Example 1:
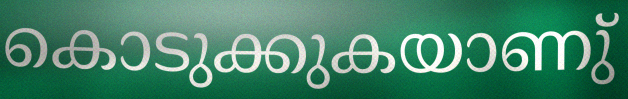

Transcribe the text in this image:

കൊടുക്കുകയാണു്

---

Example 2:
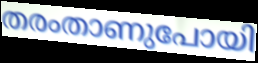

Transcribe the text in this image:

തരംതാണുപോയി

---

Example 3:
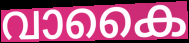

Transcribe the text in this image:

വാകൈ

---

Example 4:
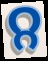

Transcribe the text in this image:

റ്റ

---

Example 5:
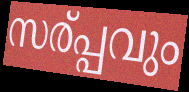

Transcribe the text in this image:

സര്പ്പവും